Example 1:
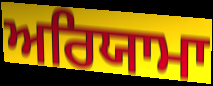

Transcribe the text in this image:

ਅਰਿਯਾਮਾ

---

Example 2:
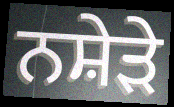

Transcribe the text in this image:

ਨਸ਼ੇੜੇ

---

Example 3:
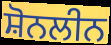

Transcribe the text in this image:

ਸ਼ੋਨਲੀਨ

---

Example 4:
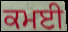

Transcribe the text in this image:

ਕਮਈ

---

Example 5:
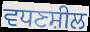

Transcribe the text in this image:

ਵਧਣਸ਼ੀਲ